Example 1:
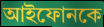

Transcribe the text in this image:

আইফোনকে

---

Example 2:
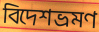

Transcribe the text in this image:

বিদেশভ্রমণ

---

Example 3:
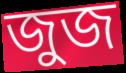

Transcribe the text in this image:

জুজ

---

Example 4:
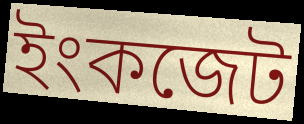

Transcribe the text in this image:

ইংকজেট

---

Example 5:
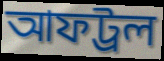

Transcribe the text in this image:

আফট্রল